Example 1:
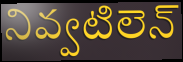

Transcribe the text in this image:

నివ్వటిలెన్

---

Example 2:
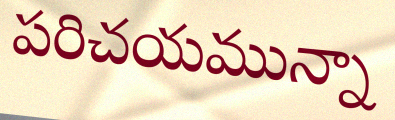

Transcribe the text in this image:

పరిచయమున్నా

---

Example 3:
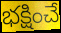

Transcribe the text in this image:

భక్షించే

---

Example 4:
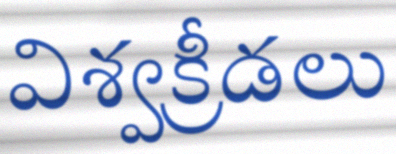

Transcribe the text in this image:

విశ్వక్రీడలు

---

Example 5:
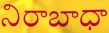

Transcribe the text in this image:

నిరాబాధా